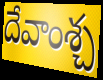
దేవాంశ్చ